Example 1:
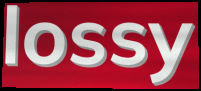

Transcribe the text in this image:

lossy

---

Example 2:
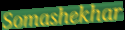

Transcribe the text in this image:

Somashekhar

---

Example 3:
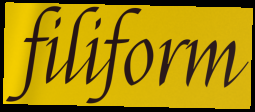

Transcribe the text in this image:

filiform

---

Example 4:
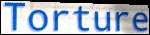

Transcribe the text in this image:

Torture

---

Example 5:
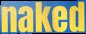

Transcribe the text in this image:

naked